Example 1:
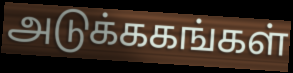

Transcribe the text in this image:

அடுக்ககங்கள்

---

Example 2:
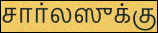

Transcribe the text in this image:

சார்லஸுக்கு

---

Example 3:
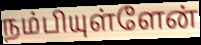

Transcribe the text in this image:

நம்பியுள்ளேன்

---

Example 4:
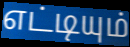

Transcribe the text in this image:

எட்டியும்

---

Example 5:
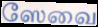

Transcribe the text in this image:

ஸேவை